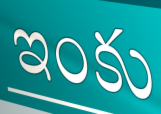
ఇంకు